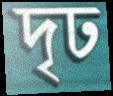
দৃঢ